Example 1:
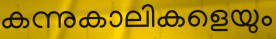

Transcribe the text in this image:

കന്നുകാലികളെയും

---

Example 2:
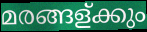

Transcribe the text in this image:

മരങ്ങള്ക്കും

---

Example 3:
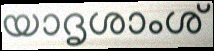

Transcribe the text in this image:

യാദൃശാംശ്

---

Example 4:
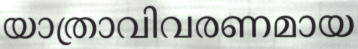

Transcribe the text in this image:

യാത്രാവിവരണമായ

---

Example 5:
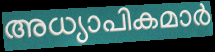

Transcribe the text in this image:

അധ്യാപികമാർ